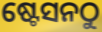
ଷ୍ଟେସନଠୁ